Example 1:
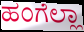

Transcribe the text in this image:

ಹಂಗೆಲ್ಲಾ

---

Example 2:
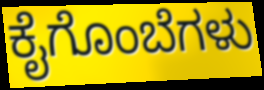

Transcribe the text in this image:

ಕೈಗೊಂಬೆಗಳು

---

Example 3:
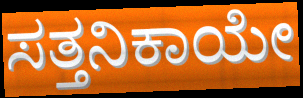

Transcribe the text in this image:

ಸತ್ತನಿಕಾಯೇ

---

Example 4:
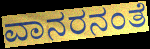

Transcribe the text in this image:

ವಾನರನಂತೆ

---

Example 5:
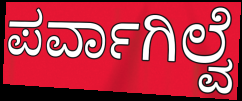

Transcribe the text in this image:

ಪರ್ವಾಗಿಲ್ವೆ